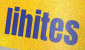
lihites